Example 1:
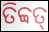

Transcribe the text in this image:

ତିବ୍ବତ୍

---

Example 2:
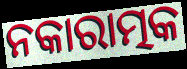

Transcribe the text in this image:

ନକାରାତ୍ମକ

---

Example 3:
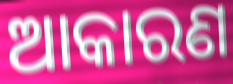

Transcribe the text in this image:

ଆକାରଣ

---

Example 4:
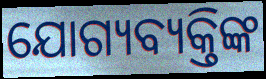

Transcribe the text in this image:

ଯୋଗ୍ୟବ୍ୟକ୍ତିଙ୍କ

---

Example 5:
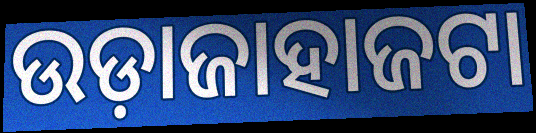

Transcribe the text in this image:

ଉଡ଼ାଜାହାଜଟା